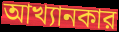
আখ্যানকার